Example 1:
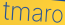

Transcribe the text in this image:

tmaro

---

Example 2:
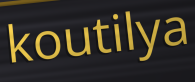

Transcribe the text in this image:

koutilya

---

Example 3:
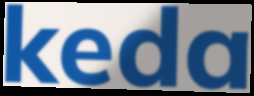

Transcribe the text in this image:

keda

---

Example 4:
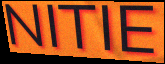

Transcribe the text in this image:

NITIE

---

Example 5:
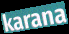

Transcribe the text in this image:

karana